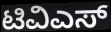
ಟಿವಿಎಸ್